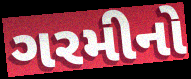
ગરમીનો